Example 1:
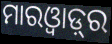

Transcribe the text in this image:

ମାରଓ୍ୱାଡ଼୍‌ର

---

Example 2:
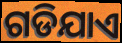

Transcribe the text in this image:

ଗଡିଯାଏ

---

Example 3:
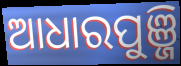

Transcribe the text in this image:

ଆଧାରପୁଞ୍ଜି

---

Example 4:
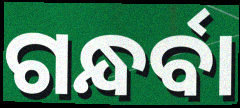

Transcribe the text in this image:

ଗନ୍ଧର୍ବା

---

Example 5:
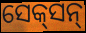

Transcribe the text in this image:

ସେକ୍‌ସନ୍